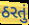
ઠરતું